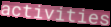
activities